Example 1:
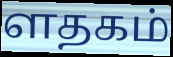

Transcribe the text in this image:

ளதகம்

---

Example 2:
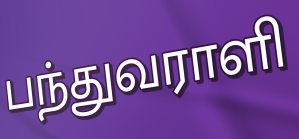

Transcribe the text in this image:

பந்துவராளி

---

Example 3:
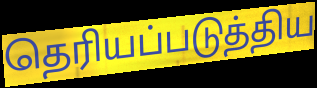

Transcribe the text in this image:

தெரியப்படுத்திய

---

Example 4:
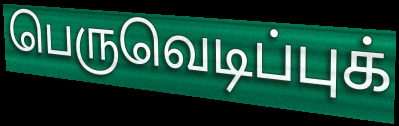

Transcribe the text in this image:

பெருவெடிப்புக்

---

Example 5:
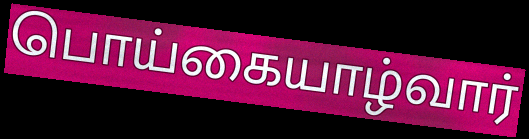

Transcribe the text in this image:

பொய்கையாழ்வார்